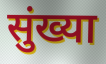
सुंख्या